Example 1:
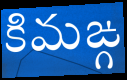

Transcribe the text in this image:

కిమఙ్గ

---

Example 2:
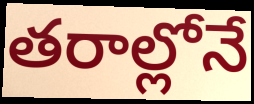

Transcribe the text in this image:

తరాల్లోనే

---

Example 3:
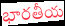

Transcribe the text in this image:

భారతీయ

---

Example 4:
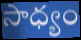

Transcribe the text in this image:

సాధ్యం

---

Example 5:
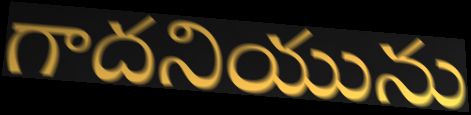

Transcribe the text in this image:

గాదనియును